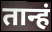
तान्हं